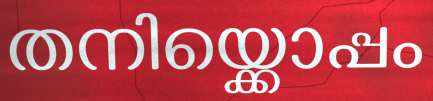
തനിയ്ക്കൊപ്പം